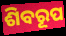
ଶିବରୂପ